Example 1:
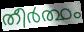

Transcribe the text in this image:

തീർത്ഥം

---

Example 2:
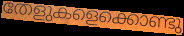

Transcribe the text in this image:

തേളുകളെക്കൊണ്ടു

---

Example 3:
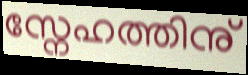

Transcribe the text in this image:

സ്നേഹത്തിനു്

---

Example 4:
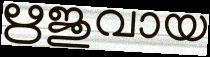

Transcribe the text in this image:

ഋജുവായ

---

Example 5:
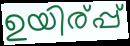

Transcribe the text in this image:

ഉയിര്പ്പ്